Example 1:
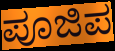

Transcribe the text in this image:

ಪೂಜಿಪ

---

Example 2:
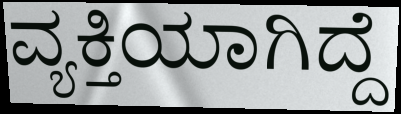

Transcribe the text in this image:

ವ್ಯಕ್ತಿಯಾಗಿದ್ದೆ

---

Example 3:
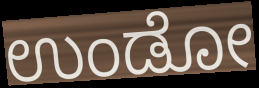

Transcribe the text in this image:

ಉಂಡೋ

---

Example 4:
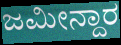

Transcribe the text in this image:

ಜಮೀನ್ದಾರ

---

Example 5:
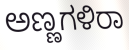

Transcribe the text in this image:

ಅಣ್ಣಗಳಿರಾ